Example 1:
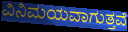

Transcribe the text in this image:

ವಿನಿಮಯವಾಗುತ್ತವೆ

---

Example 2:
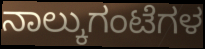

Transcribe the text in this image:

ನಾಲ್ಕುಗಂಟೆಗಳ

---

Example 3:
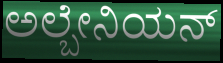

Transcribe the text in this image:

ಅಲ್ಬೇನಿಯನ್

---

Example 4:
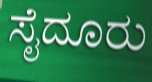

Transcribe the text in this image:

ಸೈದೂರು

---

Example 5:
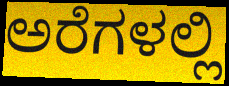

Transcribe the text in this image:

ಅರೆಗಳಲ್ಲಿ